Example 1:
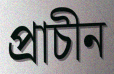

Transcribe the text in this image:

প্রাচীন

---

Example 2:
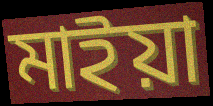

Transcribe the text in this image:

মাইয়া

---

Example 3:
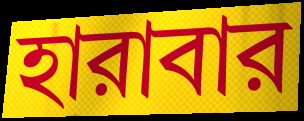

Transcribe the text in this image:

হারাবার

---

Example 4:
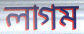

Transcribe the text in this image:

লাগম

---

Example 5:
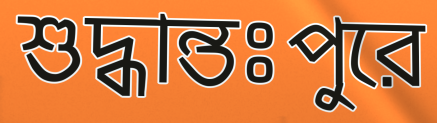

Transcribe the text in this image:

শুদ্ধান্তঃপুরে